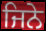
ਜਿਨੇ